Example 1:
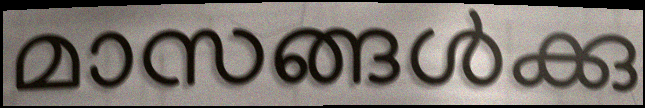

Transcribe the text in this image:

മാസങ്ങൾക്കു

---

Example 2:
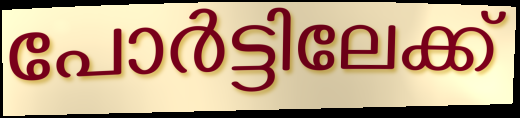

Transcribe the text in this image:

പോർട്ടിലേക്ക്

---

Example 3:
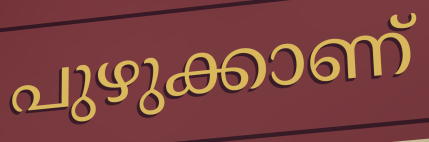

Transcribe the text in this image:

പുഴുക്കാണ്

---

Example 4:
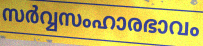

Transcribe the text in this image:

സർവ്വസംഹാരഭാവം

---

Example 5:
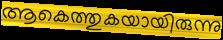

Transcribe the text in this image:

ആകെത്തുകയായിരുന്നു